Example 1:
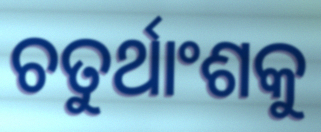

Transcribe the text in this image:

ଚତୁର୍ଥାଂଶକୁ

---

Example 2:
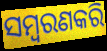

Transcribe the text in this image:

ସମ୍ବରଣକରି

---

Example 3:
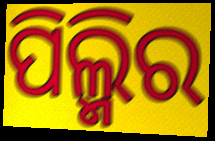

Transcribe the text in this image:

ପିଲ୍ମିର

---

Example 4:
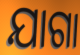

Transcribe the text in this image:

ଯାଗା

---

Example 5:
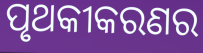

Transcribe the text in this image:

ପୃଥକୀକରଣର